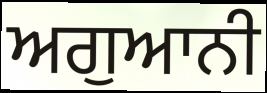
ਅਗੁਆਨੀ